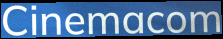
Cinemacom